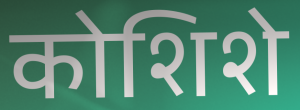
कोशिशे